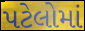
પટેલોમાં